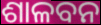
ଶାଳବନ